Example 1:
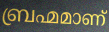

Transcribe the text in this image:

ബ്രഹ്മമാണ്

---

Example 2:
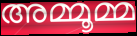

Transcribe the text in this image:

അമ്മൂമ്മ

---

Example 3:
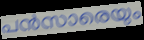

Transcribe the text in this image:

പൻസാരെയും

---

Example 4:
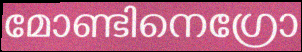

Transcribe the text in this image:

മോണ്ടിനെഗ്രോ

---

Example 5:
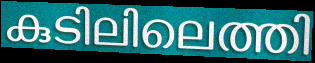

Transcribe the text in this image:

കുടിലിലെത്തി